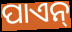
ପାଏନ୍